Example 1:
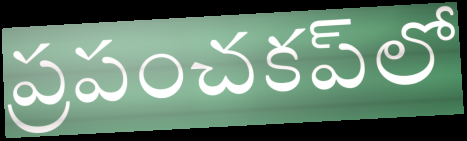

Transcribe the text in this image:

ప్రపంచకప్‌లో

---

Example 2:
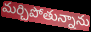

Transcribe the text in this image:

మర్చిపోతున్నాను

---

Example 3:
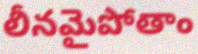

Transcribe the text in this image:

లీనమైపోతాం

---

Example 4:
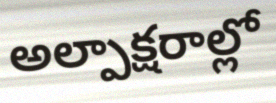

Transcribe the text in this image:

అల్పాక్షరాల్లో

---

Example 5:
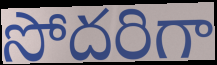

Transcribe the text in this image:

సోదరిగా